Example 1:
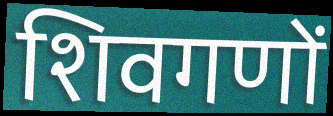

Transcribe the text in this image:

शिवगणों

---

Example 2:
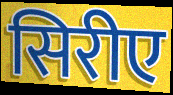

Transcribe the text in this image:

सिरीए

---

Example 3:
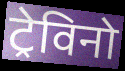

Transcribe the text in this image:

ट्रेविनो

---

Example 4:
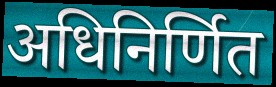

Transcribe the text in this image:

अधिनिर्णित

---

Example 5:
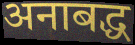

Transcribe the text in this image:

अनाबद्ध